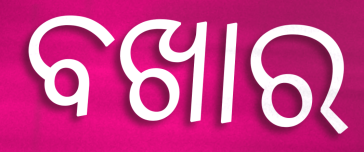
ବଖାର